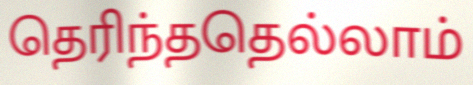
தெரிந்ததெல்லாம்